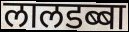
लालडब्बा